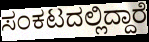
ಸಂಕಟದಲ್ಲಿದ್ದಾರೆ